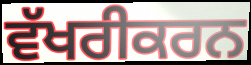
ਵੱਖਰੀਕਰਨ